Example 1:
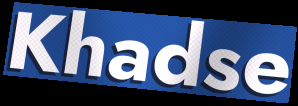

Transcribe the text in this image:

Khadse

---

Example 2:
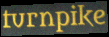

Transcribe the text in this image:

turnpike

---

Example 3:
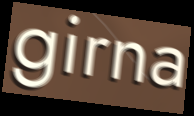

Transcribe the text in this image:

girna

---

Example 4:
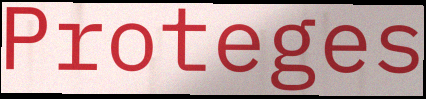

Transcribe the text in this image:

Proteges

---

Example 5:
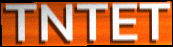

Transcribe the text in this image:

TNTET